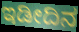
ಇಡೀದಿನ